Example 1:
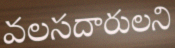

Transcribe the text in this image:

వలసదారులని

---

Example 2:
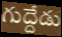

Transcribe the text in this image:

గుద్దేడు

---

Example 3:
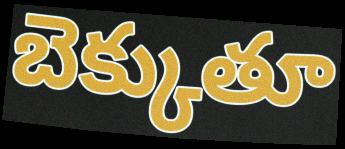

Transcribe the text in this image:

బెక్కుతూ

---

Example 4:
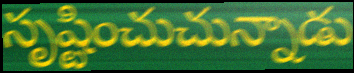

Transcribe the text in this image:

సృష్టించుచున్నాడు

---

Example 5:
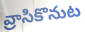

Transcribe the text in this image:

వ్రాసికొనుట